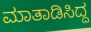
ಮಾತಾಡಿಸಿದ್ದ